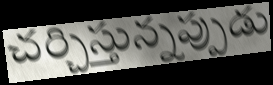
చర్చిస్తున్నప్పుడు